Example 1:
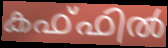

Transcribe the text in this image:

കഫ്ഫിൽ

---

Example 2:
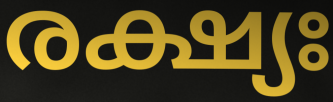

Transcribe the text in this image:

രക്ഷ്യഃ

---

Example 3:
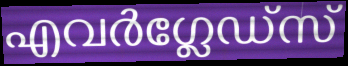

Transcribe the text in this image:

എവർഗ്ലേഡ്സ്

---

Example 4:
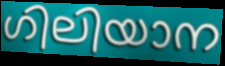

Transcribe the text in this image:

ഗിലിയാന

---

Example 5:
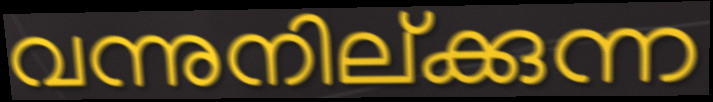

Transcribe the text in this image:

വന്നുനില്ക്കുന്ന